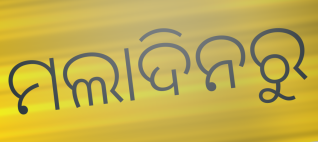
ମଲାଦିନରୁ